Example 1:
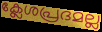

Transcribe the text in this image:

ക്ലേശപ്രദമല്ല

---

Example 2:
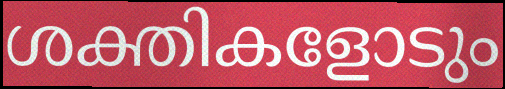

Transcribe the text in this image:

ശക്തികളോടും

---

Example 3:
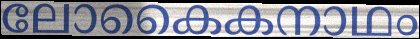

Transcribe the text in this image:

ലോകൈകനാഥം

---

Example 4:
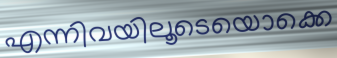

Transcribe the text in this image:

എന്നിവയിലൂടെയൊക്കെ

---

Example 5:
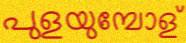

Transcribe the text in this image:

പുളയുമ്പോള്